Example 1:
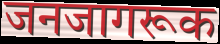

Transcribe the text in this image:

जनजागरूक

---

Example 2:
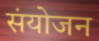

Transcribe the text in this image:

संयोजन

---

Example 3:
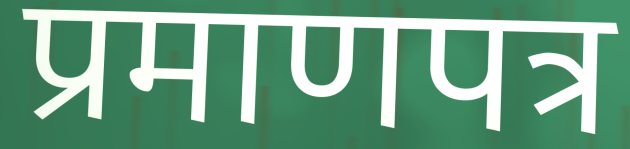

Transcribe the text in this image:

प्रमाणपत्र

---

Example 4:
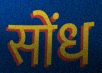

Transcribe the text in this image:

सोंध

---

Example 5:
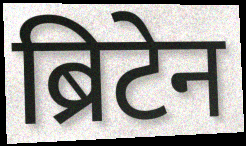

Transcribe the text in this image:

ब्रिटेन